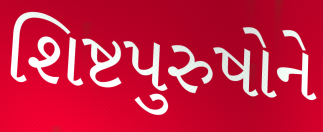
શિષ્ટપુરુષોને